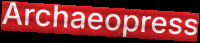
Archaeopress